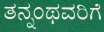
ತನ್ನಂಥವರಿಗೆ